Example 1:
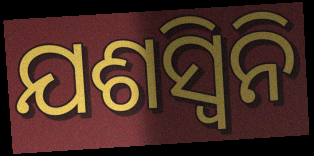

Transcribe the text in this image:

ଯଶସ୍ୱିନି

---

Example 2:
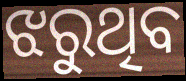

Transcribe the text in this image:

ଝରୁଥିବ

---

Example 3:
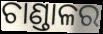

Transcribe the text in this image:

ଚାଣ୍ଡାଳର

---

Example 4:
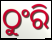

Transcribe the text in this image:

ଠୁଂରି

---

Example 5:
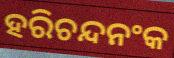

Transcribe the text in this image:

ହରିଚନ୍ଦନଂକ